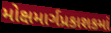
મોક્ષમાર્ગપ્રકાશકમાં